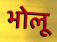
भोलू